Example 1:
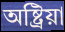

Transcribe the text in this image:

অষ্ট্ৰিয়া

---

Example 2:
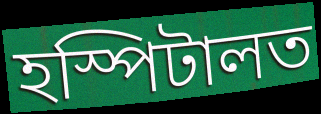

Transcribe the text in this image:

হস্পিটালত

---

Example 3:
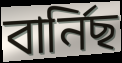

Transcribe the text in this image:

বাৰ্নিছ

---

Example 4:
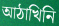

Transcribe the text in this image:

আঠাখিনি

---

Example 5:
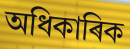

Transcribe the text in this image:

অধিকাৰিক